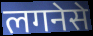
लगनेसे